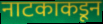
नाटकाकडून